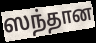
ஸந்தான